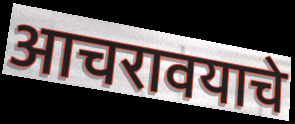
आचरावयाचे